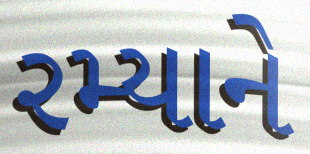
રમ્યાને